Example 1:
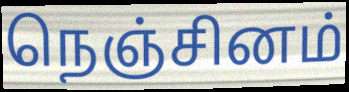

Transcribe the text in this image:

நெஞ்சினம்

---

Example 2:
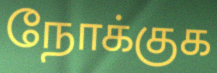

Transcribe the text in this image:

நோக்குக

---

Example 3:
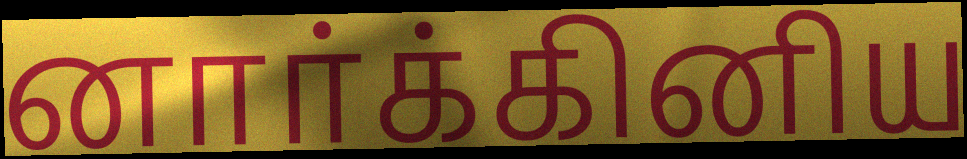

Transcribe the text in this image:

னார்க்கினிய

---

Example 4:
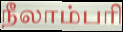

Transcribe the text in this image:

நீலாம்பரி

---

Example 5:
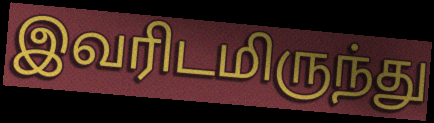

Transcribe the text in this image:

இவரிடமிருந்து